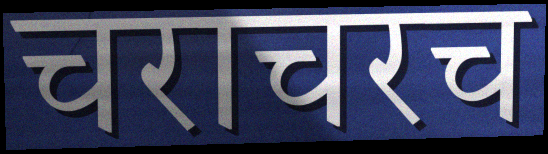
चराचरच